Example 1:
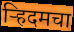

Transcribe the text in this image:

ऱ्हिदमचा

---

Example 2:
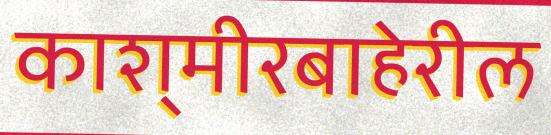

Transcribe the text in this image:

काश्मीरबाहेरील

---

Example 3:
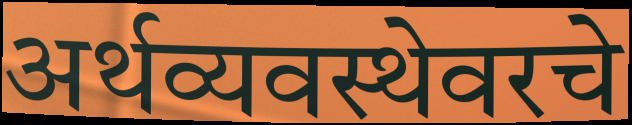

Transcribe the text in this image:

अर्थव्यवस्थेवरचे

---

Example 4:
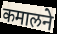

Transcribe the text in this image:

कमालने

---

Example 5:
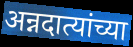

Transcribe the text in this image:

अन्नदात्यांच्या